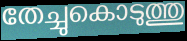
തേച്ചുകൊടുത്തു